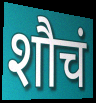
शौचं